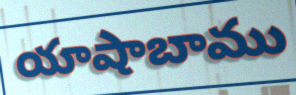
యాషాబాము